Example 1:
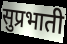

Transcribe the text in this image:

सुप्रभाती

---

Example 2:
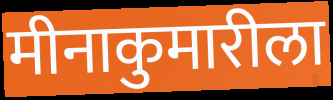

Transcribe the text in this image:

मीनाकुमारीला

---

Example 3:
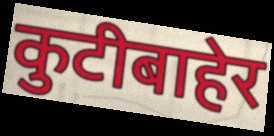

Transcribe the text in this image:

कुटीबाहेर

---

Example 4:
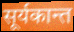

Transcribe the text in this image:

सूर्यकान्त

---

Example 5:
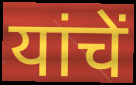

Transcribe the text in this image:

यांचें